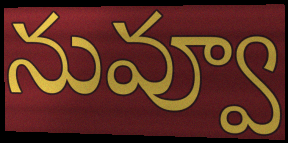
నువ్వూ